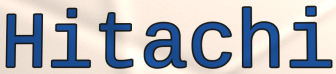
Hitachi